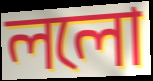
ললো